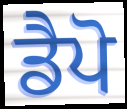
ਡੈਪੋ